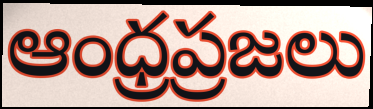
ఆంధ్రప్రజలు